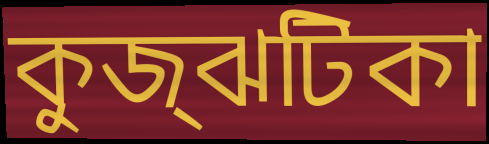
কুজ্‌ঝটিকা